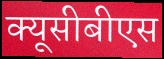
क्यूसीबीएस